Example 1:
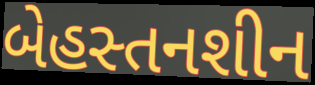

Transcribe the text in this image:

બેહસ્તનશીન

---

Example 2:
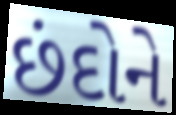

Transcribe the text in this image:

છંદોને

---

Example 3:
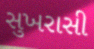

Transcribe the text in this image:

સુખરાસી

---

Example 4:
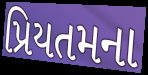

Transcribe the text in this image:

પ્રિયતમના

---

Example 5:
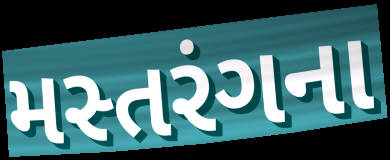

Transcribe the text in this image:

મસ્તરંગના